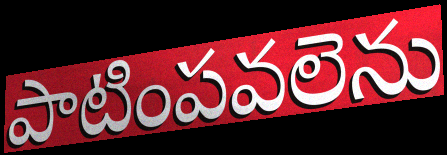
పాటింపవలెను